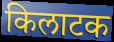
किलाटक